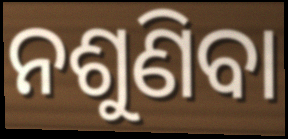
ନଶୁଣିବା